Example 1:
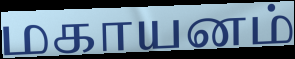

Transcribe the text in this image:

மகாயனம்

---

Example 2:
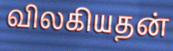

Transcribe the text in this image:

விலகியதன்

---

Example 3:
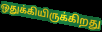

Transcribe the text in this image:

ஒதுக்கியிருக்கிறது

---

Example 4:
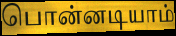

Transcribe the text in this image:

பொன்னடியாம்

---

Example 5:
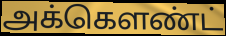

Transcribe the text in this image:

அக்கெளண்ட்